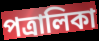
পত্রালিকা